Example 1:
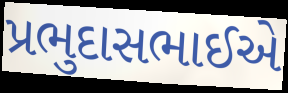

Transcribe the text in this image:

પ્રભુદાસભાઈએ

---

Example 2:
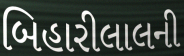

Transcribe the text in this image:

બિહારીલાલની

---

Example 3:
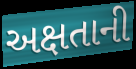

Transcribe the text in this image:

અક્ષતાની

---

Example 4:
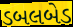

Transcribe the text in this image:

ડબલબેડ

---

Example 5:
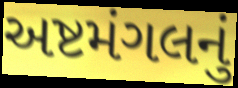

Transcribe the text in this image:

અષ્ટમંગલનું